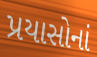
પ્રયાસોનાં